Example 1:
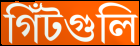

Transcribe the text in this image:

গিঁটগুলি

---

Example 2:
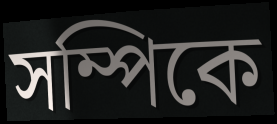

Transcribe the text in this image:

সম্পিকে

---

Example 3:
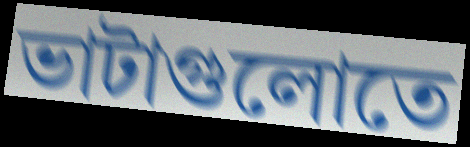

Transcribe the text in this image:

ভাটাগুলোতে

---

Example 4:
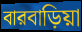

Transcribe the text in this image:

বারবাড়িয়া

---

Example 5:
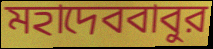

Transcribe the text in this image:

মহাদেববাবুর